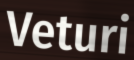
Veturi